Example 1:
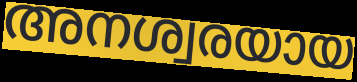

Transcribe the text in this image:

അനശ്വരയായ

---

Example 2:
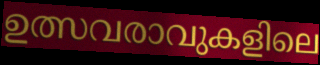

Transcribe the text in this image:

ഉത്സവരാവുകളിലെ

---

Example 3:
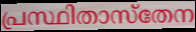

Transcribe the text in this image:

പ്രസ്ഥിതാസ്തേന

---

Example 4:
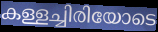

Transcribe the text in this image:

കള്ളച്ചിരിയോടെ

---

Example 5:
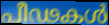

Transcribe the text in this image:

പീഢകൾ